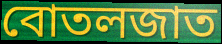
বোতলজাত